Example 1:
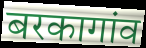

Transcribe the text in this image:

बरकागांव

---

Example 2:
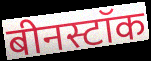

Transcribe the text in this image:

बीनस्टॉक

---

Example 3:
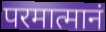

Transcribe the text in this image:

परमात्मानं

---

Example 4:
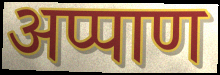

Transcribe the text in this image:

अप्पाण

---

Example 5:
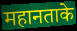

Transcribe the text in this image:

महानताके